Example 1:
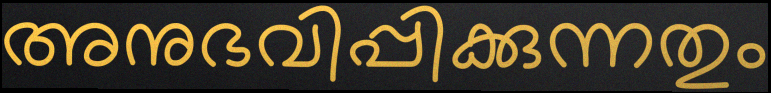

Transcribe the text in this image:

അനുഭവിപ്പിക്കുന്നതും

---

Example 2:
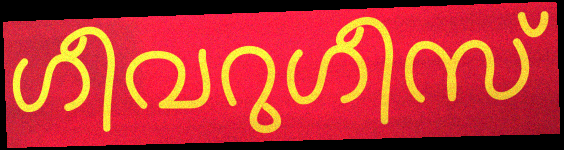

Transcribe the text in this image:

ഗീവറുഗീസ്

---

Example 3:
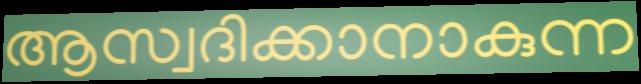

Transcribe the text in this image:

ആസ്വദിക്കാനാകുന്ന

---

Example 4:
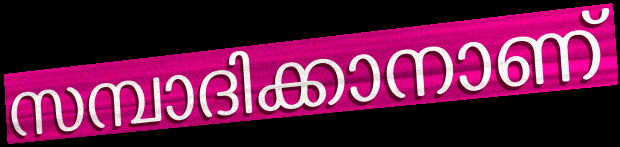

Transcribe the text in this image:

സമ്പാദിക്കാനാണ്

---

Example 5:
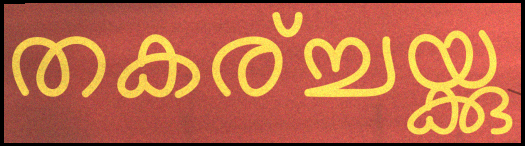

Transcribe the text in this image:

തകര്ച്ചയ്ക്കു